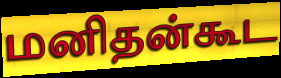
மனிதன்கூட